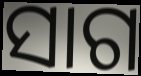
ସାଗ